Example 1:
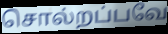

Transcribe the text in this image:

சொல்றப்பவே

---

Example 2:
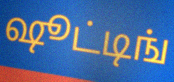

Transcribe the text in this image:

ஷூட்டிங்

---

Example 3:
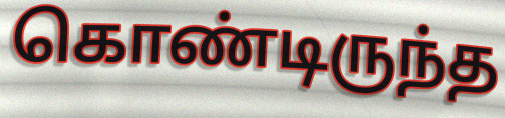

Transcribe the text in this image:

கொண்டிருந்த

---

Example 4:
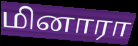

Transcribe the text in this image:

மினாரா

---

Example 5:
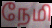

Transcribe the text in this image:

நேமி